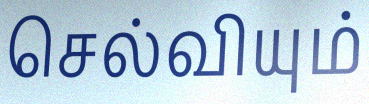
செல்வியும்